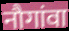
नौगांवा